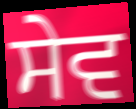
ਸੇਵ